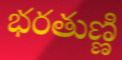
భరతుణ్ణి